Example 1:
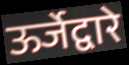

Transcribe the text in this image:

ऊर्जेद्वारे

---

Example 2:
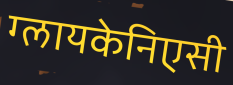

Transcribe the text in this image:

ग्लायकेनिएसी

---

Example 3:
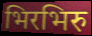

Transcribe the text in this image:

भिरभिरु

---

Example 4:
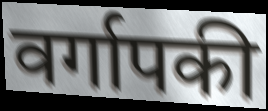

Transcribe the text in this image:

वर्गापकी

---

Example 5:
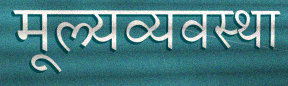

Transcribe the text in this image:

मूल्यव्यवस्था